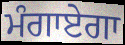
ਮੰਗਾਏਗਾ